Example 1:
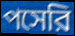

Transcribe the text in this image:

পসেরি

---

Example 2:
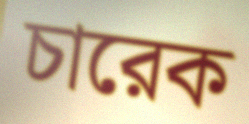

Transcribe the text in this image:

চারেক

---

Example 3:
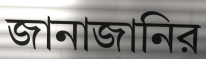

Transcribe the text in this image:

জানাজানির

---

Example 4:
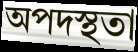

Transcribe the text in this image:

অপদস্থতা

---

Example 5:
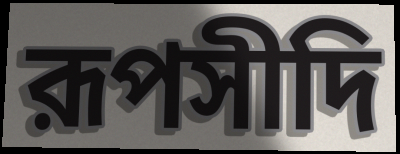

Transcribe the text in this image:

রূপসীদি